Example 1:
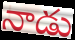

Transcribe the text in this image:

నాడు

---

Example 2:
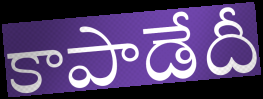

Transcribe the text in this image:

కాపాడేదీ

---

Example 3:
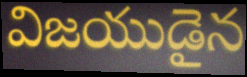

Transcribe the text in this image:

విజయుడైన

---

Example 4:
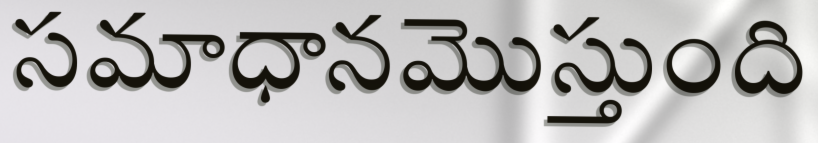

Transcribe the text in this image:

సమాధానమొస్తుంది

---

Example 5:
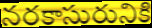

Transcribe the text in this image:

నరకాసురునికి